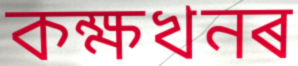
কক্ষখনৰ